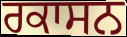
ਰਕਾਸਨ